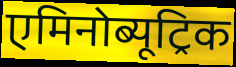
एमिनोब्यूट्रिक